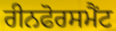
ਰੀਨਫੋਰਸਮੈਂਟ